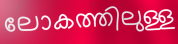
ലോകത്തിലുള്ള